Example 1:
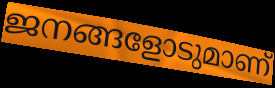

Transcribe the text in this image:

ജനങ്ങളോടുമാണ്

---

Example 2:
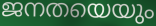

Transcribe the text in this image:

ജനതയെയും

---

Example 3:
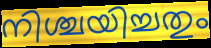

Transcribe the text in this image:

നിശ്ചയിച്ചതും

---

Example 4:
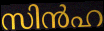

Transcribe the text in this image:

സിൻഹ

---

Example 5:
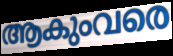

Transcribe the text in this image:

ആകുംവരെ